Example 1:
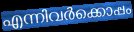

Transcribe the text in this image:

എന്നിവർക്കൊപ്പം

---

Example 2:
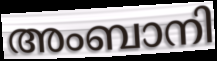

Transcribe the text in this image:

അംബാനി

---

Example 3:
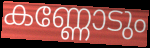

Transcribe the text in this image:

കണ്ണോടും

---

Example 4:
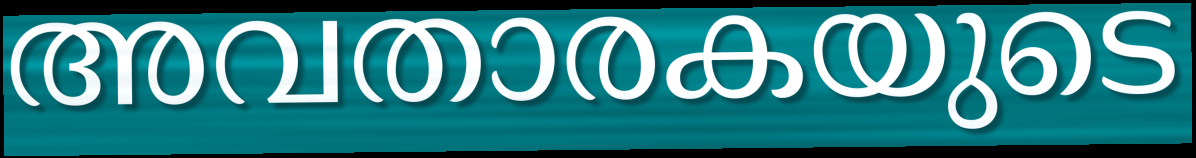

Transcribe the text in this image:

അവതാരകയുടെ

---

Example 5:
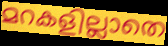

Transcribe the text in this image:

മറകളില്ലാതെ